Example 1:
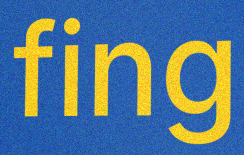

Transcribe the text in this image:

fing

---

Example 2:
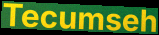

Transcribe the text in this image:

Tecumseh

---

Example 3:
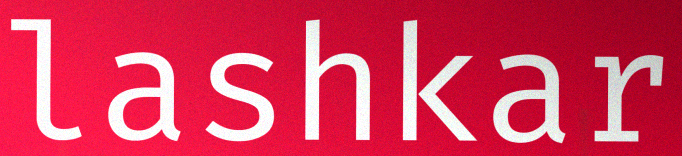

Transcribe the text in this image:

lashkar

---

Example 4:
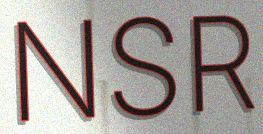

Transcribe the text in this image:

NSR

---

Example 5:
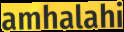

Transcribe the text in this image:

amhalahi